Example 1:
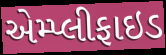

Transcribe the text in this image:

એમ્પ્લીફાઇડ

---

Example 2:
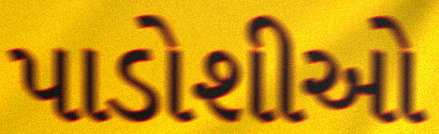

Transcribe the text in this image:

પાડોશીઓ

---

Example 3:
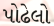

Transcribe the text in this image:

પોઢેલો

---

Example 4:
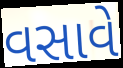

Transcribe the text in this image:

વસાવે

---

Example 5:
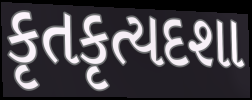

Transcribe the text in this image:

કૃતકૃત્યદશા